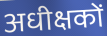
अधीक्षकों